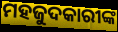
ମହଜୁଦକାରୀଙ୍କ